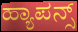
ಹ್ಯಾಪನ್ಸ್